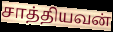
சாத்தியவன்